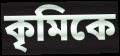
কৃমিকে